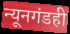
न्यूनगंडही